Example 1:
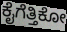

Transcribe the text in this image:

ಕೈಗೆತ್ತಿಕೋ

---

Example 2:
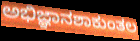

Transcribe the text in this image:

ಅಭಿಜ್ಞಾನಶಾಕುಂತಲ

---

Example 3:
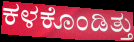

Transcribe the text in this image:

ಕಳಕೊಂಡಿತ್ತು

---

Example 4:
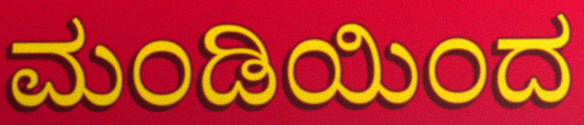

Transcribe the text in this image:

ಮಂಡಿಯಿಂದ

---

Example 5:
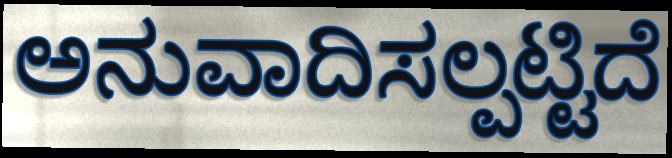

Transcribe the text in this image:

ಅನುವಾದಿಸಲ್ಪಟ್ಟಿದೆ